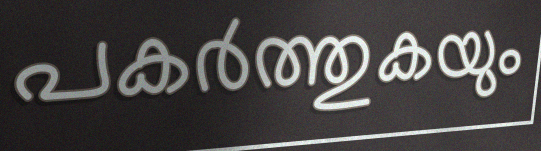
പകർത്തുകയും